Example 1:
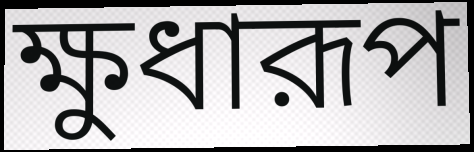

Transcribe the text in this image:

ক্ষুধারূপ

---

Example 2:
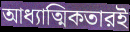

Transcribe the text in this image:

আধ্যাত্মিকতারই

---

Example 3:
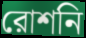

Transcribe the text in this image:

রোশনি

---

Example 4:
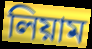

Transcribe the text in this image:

লিয়াম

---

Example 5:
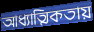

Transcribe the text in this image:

আধ্যাত্মিকতায়